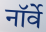
नॉर्वे